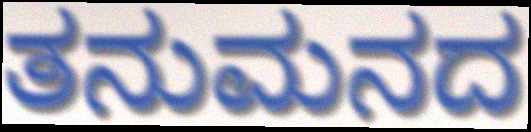
ತನುಮನದ